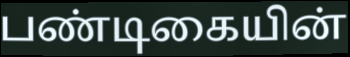
பண்டிகையின்